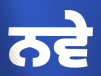
ਨਵੇ